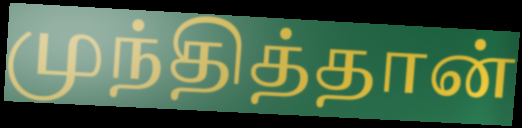
முந்தித்தான்